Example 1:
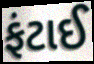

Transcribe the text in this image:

ફંટાઈ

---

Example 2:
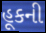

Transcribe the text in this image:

હૂકની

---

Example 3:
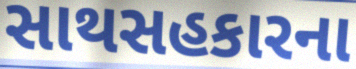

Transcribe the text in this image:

સાથસહકારના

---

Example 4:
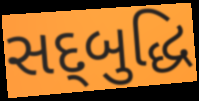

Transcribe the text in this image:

સદ્‌બુદ્ધિ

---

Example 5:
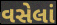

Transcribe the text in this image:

વસેલાં